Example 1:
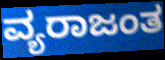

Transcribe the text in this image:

ವ್ಯರಾಜಂತ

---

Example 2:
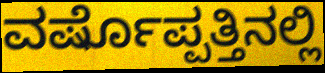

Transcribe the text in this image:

ವರ್ಷೊಪ್ಪತ್ತಿನಲ್ಲಿ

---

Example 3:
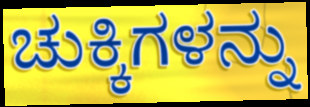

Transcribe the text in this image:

ಚುಕ್ಕಿಗಳನ್ನು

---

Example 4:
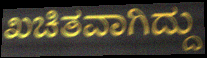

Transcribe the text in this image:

ಖಚಿತವಾಗಿದ್ದು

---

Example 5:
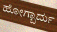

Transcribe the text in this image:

ಹೋಗ್ಬಾರ್ದು